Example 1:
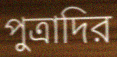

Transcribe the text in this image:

পুত্রাদির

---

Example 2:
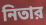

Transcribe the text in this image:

নিতার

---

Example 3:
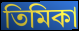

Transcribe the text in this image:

তিমিকা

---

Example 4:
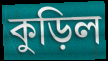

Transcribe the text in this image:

কুড়িল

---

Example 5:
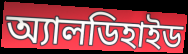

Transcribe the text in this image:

অ্যালডিহাইড